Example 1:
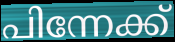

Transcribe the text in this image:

പിന്നേക്ക്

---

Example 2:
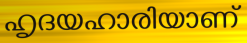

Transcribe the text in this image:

ഹൃദയഹാരിയാണ്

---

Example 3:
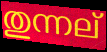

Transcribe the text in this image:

തുന്നല്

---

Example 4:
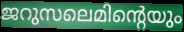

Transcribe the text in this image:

ജറുസലെമിന്റെയും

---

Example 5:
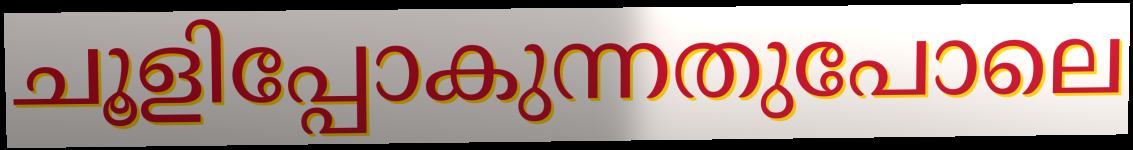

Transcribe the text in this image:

ചൂളിപ്പോകുന്നതുപോലെ